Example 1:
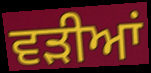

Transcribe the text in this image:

ਵੜੀਆਂ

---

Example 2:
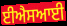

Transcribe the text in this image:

ਈਐਸਆਈ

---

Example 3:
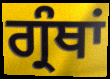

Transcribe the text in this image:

ਗ੍ਰੰਥਾਂ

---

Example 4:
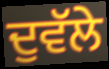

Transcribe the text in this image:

ਦੁਵੱਲੇ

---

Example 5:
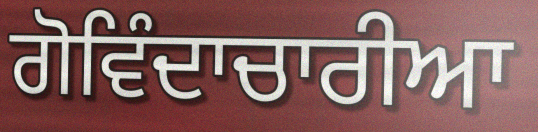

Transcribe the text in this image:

ਗੋਵਿੰਦਾਚਾਰੀਆ